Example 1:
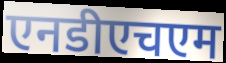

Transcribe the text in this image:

एनडीएचएम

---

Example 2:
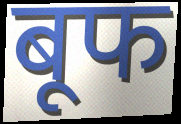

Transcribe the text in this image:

बूफ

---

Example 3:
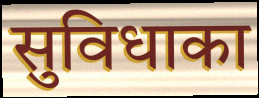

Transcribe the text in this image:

सुविधाका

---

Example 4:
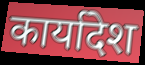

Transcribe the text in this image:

कार्यादेश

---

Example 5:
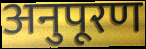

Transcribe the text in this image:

अनुपूरण